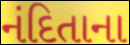
નંદિતાના